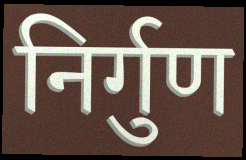
निर्गुण